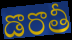
డొరొతీ